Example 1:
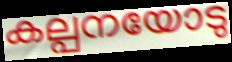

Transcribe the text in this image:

കല്പനയോടു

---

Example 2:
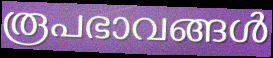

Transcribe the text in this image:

രൂപഭാവങ്ങൾ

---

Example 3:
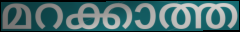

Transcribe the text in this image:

മറക്കാത്ത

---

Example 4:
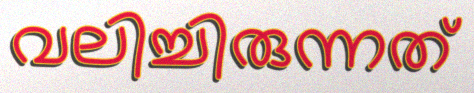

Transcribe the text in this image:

വലിച്ചിരുന്നത്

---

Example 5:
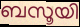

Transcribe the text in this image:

ബസൂയി